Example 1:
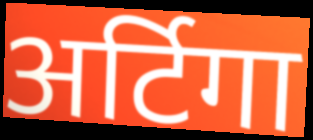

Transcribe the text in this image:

अर्टिगा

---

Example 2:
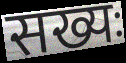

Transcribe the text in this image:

सख्यः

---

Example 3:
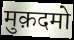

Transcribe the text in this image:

मुक़दमो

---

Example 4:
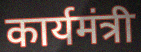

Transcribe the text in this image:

कार्यमंत्री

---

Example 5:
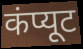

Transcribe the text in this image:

कंप्यूट